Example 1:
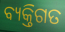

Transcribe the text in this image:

ବ୍ୟକ୍ତିଗତ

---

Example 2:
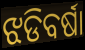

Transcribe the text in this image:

ଝଡିବର୍ଷା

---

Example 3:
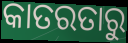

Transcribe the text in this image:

କାତରତାରୁ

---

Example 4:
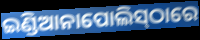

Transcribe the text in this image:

ଇଣ୍ଡିଆନାପୋଲିସ୍‍ଠାରେ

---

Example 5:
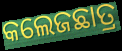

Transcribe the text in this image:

କଲେଜଛାତ୍ର